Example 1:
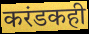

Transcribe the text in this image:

करंडकही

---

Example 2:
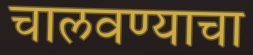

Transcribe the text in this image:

चालवण्याचा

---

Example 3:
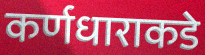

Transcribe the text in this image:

कर्णधाराकडे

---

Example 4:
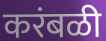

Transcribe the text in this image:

करंबळी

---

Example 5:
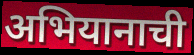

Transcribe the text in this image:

अभियानाची